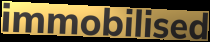
immobilised